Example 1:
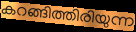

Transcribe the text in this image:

കറങ്ങിത്തിരിയുന്ന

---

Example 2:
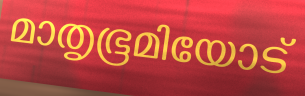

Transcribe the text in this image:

മാതൃഭൂമിയോട്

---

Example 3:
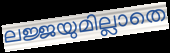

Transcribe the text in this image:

ലജ്ജയുമില്ലാതെ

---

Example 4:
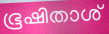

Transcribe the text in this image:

ഭൂഷിതാശ്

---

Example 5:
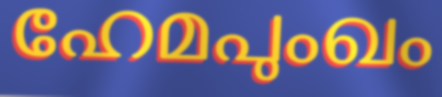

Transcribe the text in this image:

ഹേമപുംഖം